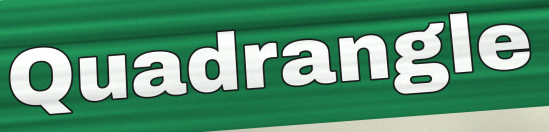
Quadrangle